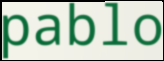
pablo